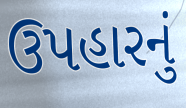
ઉપહારનું